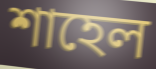
শাহেল